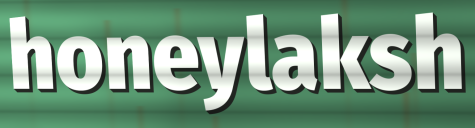
honeylaksh